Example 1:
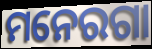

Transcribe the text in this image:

ମନେରଗା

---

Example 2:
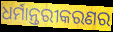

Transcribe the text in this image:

ଧର୍ମାନ୍ତରୀକରଣର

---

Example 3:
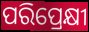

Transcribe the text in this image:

ପରିପ୍ରେକ୍ଷୀ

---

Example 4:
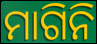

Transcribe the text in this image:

ମାଗିନି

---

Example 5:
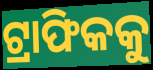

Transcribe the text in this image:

ଟ୍ରାଫିକକୁ